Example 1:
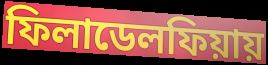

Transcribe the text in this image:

ফিলাডেলফিয়ায়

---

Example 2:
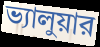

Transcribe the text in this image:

ভ্যালুয়ার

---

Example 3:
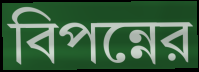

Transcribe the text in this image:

বিপন্নের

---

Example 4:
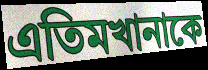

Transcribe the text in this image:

এতিমখানাকে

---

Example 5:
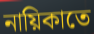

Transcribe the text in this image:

নায়িকাতে